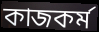
কাজকর্ম